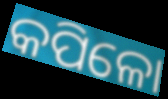
କପିଳୋ